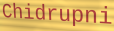
Chidrupni